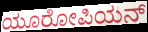
ಯೂರೋಪಿಯನ್